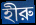
হীরু